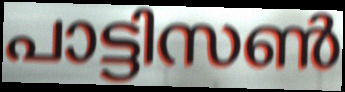
പാട്ടിസൺ